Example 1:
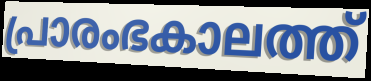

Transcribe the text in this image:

പ്രാരംഭകാലത്ത്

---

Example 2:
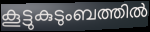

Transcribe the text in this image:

കൂട്ടുകുടുംബത്തിൽ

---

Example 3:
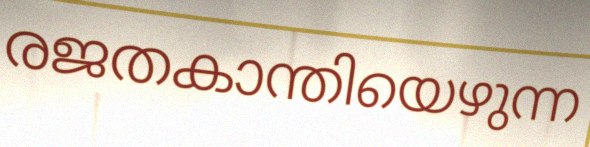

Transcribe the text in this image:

രജതകാന്തിയെഴുന്ന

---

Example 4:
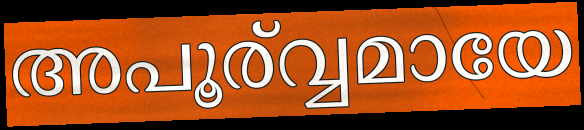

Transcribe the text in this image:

അപൂര്വ്വമായേ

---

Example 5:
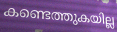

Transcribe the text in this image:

കണ്ടെത്തുകയില്ല